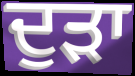
ਦੁੜਾ